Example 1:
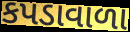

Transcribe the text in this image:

કપડાવાળા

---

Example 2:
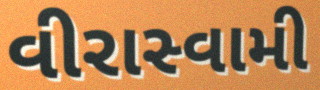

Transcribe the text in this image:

વીરાસ્વામી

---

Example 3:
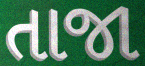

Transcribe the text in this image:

તાજા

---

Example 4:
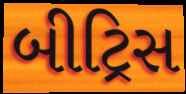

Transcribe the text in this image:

બીટ્રિસ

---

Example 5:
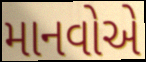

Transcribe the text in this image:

માનવોએ